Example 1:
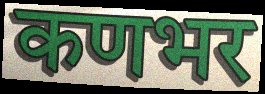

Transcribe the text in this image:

कणभर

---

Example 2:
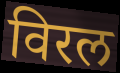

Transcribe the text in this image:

विरल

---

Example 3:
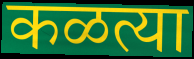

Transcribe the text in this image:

कळत्या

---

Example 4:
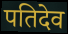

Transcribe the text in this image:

पतिदेव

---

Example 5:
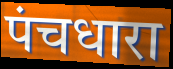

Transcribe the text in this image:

पंचधारा